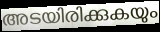
അടയിരിക്കുകയും